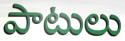
పాటులు